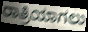
ರಾತ್ರಿಯಾಗಲು